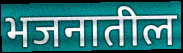
भजनातील